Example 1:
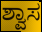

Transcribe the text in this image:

ಶ್ವಾಸ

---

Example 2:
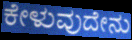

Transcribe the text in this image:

ಕೇಳುವುದೇನು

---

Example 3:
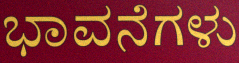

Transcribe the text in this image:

ಭಾವನೆಗಳು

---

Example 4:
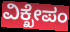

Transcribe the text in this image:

ವಿಕ್ಖೇಪಂ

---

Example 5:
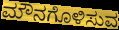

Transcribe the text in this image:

ಮೌನಗೊಳಿಸುವ